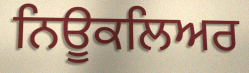
ਨਿਊਕਲਿਅਰ